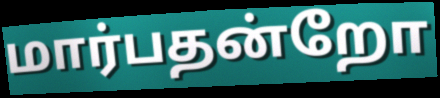
மார்பதன்றோ